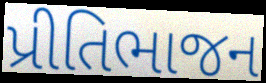
પ્રીતિભાજન